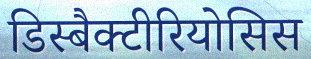
डिस्बैक्टीरियोसिस